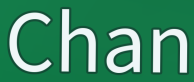
Chan